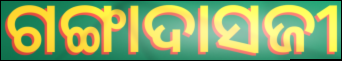
ଗଙ୍ଗାଦାସଜୀ